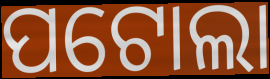
ପଟୋଲା